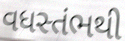
વધસ્તંભથી